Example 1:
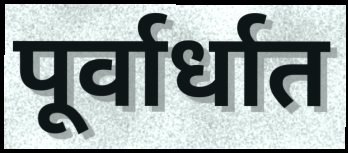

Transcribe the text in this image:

पूर्वार्धात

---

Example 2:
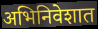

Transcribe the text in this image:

अभिनिवेशात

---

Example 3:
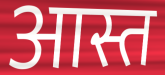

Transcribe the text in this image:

आस्त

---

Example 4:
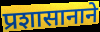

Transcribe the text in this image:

प्रशासानाने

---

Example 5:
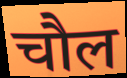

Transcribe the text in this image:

चौल